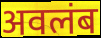
अवलंब